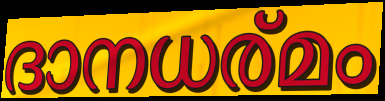
ദാനധര്മം